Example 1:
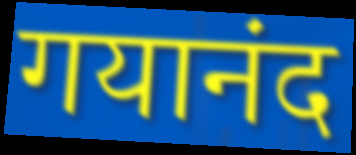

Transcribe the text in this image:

गयानंद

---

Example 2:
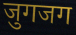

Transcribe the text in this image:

जुगजग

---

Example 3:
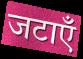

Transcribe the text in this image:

जटाएँ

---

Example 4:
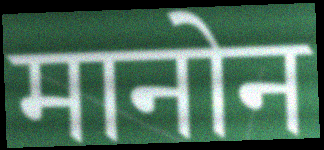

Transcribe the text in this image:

मानोन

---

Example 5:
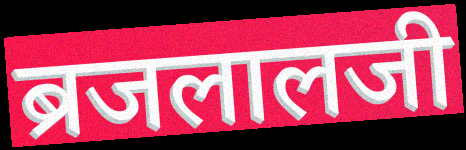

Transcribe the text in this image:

ब्रजलालजी